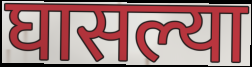
घासल्या